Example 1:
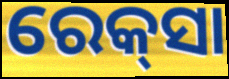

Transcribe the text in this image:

ରେକ୍‍ସା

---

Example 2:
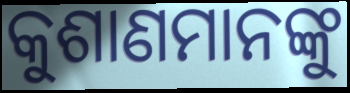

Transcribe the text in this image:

କୁଶାଣମାନଙ୍କୁ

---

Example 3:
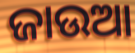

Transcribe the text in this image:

ଜାଉଆ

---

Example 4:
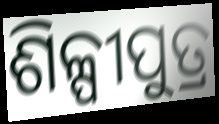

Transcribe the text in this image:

ଶିଳ୍ପୀପୁତ୍ର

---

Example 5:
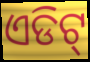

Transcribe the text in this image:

ଏଡିଟ୍